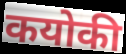
कयोकी